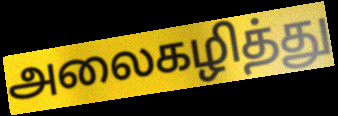
அலைகழித்து